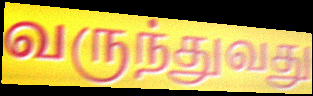
வருந்துவது